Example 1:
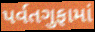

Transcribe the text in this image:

પર્વતગુફામાં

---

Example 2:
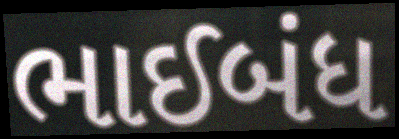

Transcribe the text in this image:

ભાઈબંધ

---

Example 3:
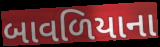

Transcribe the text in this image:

બાવળિયાના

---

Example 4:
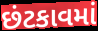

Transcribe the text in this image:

છંટકાવમાં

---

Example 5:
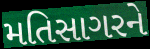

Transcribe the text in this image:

મતિસાગરને